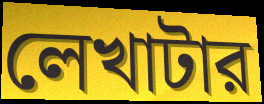
লেখাটার